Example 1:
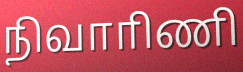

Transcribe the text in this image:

நிவாரிணி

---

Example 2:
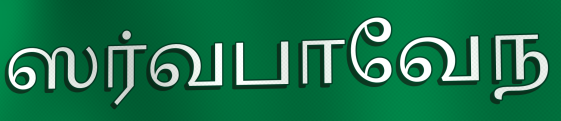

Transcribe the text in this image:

ஸர்வபாவேந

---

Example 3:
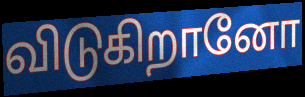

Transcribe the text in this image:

விடுகிறானோ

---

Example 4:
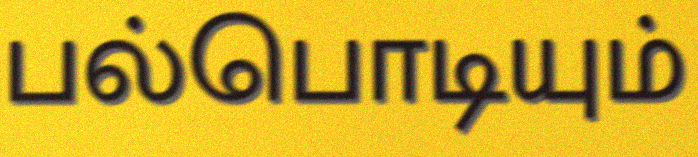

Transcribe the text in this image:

பல்பொடியும்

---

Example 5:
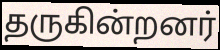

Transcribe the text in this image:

தருகின்றனர்